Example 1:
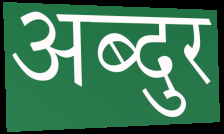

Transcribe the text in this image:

अब्दुर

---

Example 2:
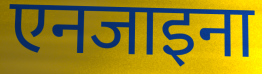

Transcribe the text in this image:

एनजाइना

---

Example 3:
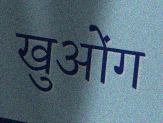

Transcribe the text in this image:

खुओंग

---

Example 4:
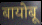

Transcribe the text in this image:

बायोबू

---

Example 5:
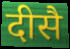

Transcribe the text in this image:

दीसै